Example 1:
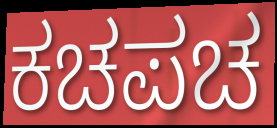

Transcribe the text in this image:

ಕಚಪಚ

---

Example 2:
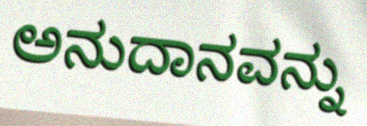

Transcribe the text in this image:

ಅನುದಾನವನ್ನು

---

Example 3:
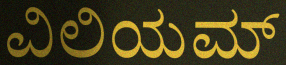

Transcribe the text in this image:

ವಿಲಿಯಮ್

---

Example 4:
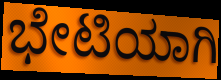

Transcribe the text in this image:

ಭೇಟಿಯಾಗಿ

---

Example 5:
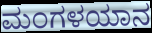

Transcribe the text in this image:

ಮಂಗಳಯಾನ